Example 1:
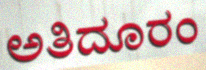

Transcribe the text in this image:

ಅತಿದೂರಂ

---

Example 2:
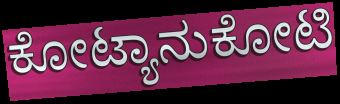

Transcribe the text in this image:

ಕೋಟ್ಯಾನುಕೋಟಿ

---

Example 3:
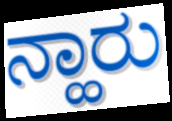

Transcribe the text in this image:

ನ್ಹಾರು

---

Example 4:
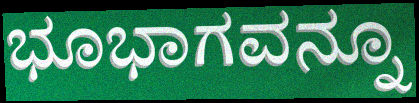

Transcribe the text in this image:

ಭೂಭಾಗವನ್ನೂ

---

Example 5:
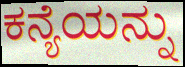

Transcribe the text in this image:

ಕನ್ಯೆಯನ್ನು